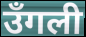
उँगली